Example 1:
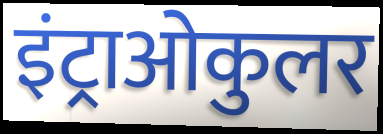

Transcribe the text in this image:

इंट्राओकुलर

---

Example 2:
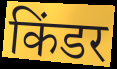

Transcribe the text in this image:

किंडर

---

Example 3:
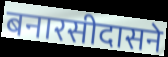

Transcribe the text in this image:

बनारसीदासने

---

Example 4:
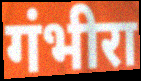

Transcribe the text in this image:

गंभीरा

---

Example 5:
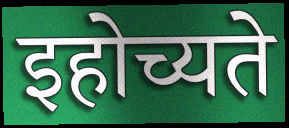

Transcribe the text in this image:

इहोच्यते